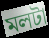
মলটা